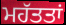
ਮਹੱਤਤਾਂ